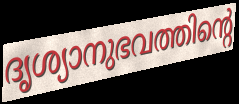
ദൃശ്യാനുഭവത്തിന്റെ